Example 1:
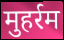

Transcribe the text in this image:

मुहर्रम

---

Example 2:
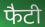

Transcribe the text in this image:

फैटी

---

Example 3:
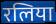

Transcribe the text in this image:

रलिया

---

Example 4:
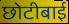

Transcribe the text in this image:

छोटीबाई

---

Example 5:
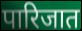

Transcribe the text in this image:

पारिजात